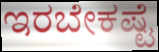
ಇರಬೇಕಷ್ಟೆ